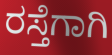
ರಸ್ತೆಗಾಗಿ